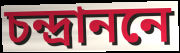
চন্দ্রাননে